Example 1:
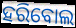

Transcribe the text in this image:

ହରିବୋଲ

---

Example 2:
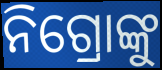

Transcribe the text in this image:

ନିଗ୍ରୋଙ୍କୁ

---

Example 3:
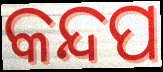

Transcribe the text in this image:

କନ୍ଦପ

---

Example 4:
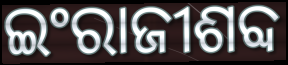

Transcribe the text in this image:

ଇଂରାଜୀଶବ୍ଦ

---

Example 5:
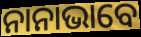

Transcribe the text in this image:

ନାନାଭାବେ